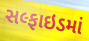
સલ્ફાઇડમાં